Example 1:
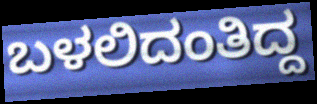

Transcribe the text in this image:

ಬಳಲಿದಂತಿದ್ದ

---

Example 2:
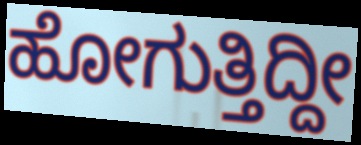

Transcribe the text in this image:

ಹೋಗುತ್ತಿದ್ದೀ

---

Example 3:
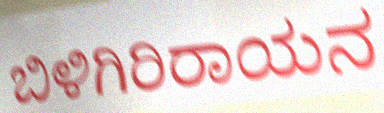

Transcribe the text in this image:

ಬಿಳಿಗಿರಿರಾಯನ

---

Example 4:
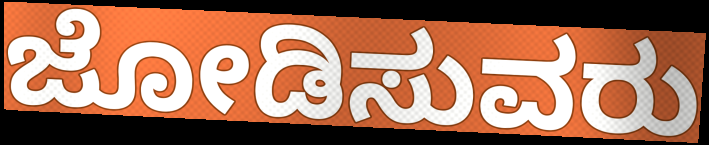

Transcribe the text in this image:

ಜೋಡಿಸುವರು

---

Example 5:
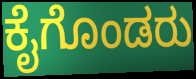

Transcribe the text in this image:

ಕೈಗೊಂಡರು